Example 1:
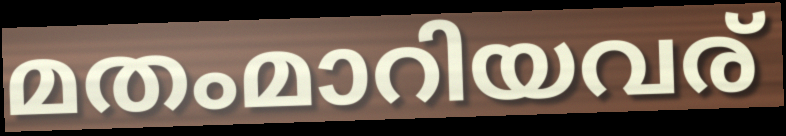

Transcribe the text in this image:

മതംമാറിയവര്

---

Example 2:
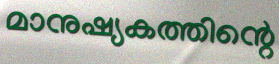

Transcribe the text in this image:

മാനുഷ്യകത്തിന്റെ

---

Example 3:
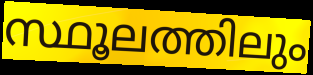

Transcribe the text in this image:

സ്ഥൂലത്തിലും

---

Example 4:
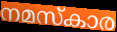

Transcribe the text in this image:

നമസ്കാര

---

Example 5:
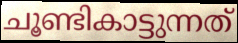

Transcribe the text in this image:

ചൂണ്ടികാട്ടുന്നത്